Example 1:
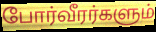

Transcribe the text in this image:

போர்வீரர்களும்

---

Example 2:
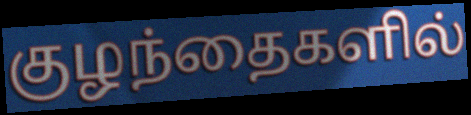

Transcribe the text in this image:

குழந்தைகளில்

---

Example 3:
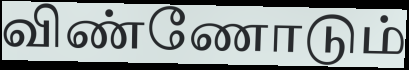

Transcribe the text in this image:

விண்ணோடும்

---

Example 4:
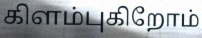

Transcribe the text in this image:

கிளம்புகிறோம்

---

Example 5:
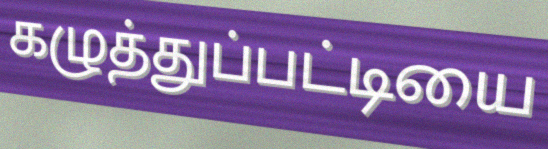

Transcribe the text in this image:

கழுத்துப்பட்டியை